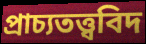
প্রাচ্যতত্ত্ববিদ